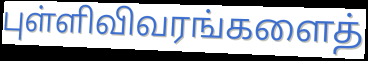
புள்ளிவிவரங்களைத்